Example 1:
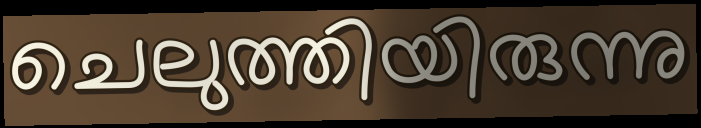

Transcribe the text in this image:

ചെലുത്തിയിരുന്നു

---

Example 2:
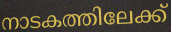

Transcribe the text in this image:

നാടകത്തിലേക്ക്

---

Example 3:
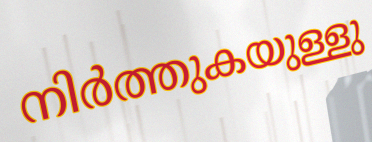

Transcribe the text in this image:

നിർത്തുകയുള്ളു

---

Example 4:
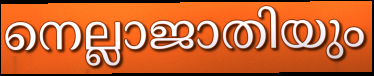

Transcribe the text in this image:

നെല്ലാജാതിയും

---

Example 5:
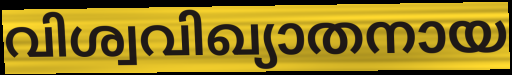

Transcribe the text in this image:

വിശ്വവിഖ്യാതനായ